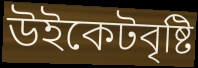
উইকেটবৃষ্টি